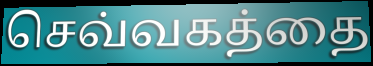
செவ்வகத்தை